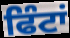
ਫਿੰਟਾਂ